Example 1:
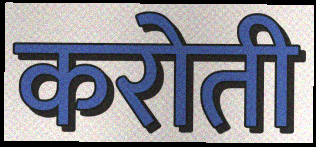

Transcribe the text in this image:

करोती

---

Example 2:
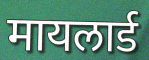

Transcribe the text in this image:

मायलार्ड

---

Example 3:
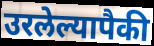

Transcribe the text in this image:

उरलेल्यापैकी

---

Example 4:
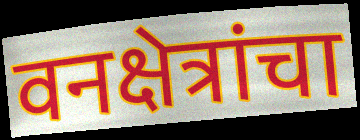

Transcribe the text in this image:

वनक्षेत्रांचा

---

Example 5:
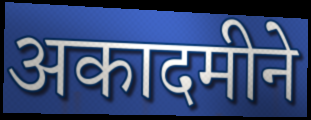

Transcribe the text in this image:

अकादमीने